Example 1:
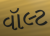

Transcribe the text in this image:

વૉલ્ટ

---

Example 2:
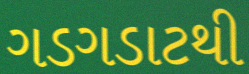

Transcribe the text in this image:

ગડગડાટથી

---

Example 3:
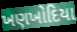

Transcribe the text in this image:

ખણખોદિયા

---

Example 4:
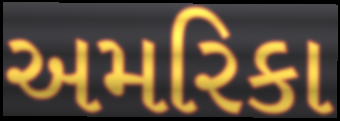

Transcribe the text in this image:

અમરિકા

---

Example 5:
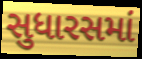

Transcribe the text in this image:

સુધારસમાં